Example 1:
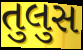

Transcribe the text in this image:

તુલુસ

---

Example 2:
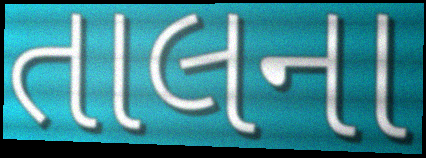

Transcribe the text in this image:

તાલના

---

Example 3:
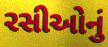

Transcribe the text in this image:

રસીઓનું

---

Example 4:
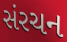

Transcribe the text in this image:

સંરચન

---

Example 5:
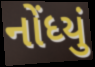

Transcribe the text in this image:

નોંધ્યું